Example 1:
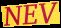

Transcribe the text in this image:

NEV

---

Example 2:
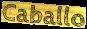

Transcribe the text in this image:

Caballo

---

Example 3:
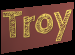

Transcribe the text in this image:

Troy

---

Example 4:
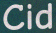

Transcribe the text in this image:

Cid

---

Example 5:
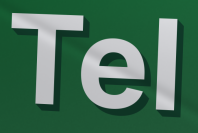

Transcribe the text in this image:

Tel